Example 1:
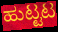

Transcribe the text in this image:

ಹುಟ್ಟಟ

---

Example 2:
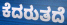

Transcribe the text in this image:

ಕೆದರುತದೆ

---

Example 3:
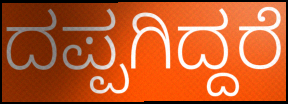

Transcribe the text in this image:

ದಪ್ಪಗಿದ್ದರೆ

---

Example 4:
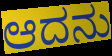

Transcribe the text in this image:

ಆದನು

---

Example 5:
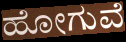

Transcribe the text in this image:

ಹೋಗುವೆ